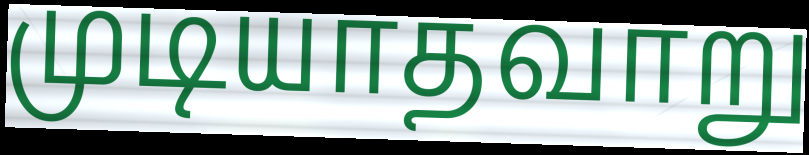
முடியாதவாறு